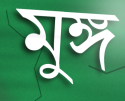
মুঙ্গ